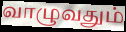
வாழுவதும்